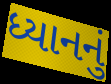
ધ્યાનનું